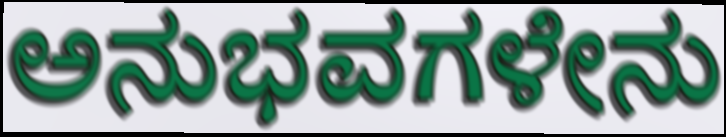
ಅನುಭವಗಳೇನು